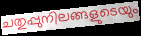
ചതുപ്പുനിലങ്ങളുടെയും